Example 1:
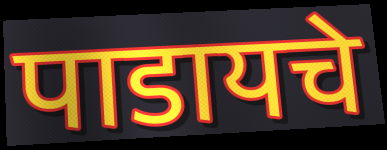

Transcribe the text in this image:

पाडायचे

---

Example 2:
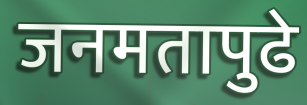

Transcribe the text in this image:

जनमतापुढे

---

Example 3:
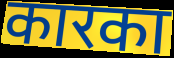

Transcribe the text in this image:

कारका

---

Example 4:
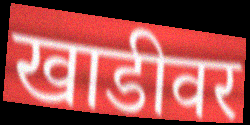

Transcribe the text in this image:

खाडीवर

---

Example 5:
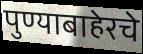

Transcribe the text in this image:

पुण्याबाहेरचे